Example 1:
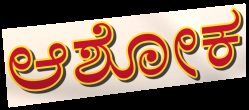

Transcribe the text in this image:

ಆಶೋಕ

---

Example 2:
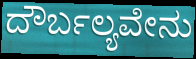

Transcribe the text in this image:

ದೌರ್ಬಲ್ಯವೇನು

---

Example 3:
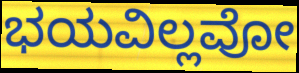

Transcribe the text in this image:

ಭಯವಿಲ್ಲವೋ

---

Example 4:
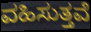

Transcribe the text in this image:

ವಹಿಸುತ್ತವೆ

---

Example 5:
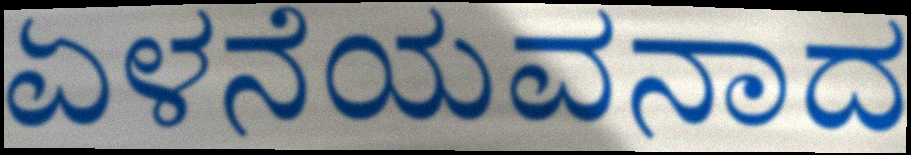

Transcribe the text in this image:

ಏಳನೆಯವನಾದ